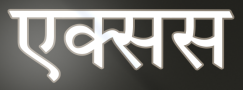
एक्सस